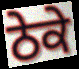
ਠੇਕੇ